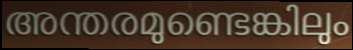
അന്തരമുണ്ടെങ്കിലും